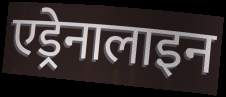
एड्रेनालाइन